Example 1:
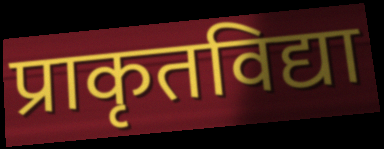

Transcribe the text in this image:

प्राकृतविद्या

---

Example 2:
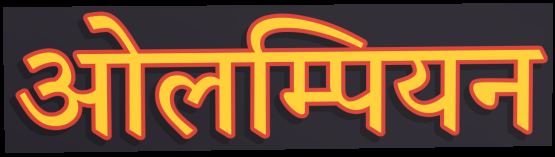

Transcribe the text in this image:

ओलम्पियन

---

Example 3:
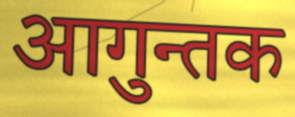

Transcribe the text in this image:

आगुन्तक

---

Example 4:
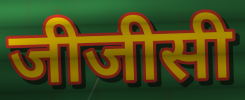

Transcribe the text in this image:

जीजीसी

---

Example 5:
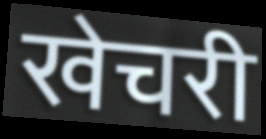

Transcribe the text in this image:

खेचरी